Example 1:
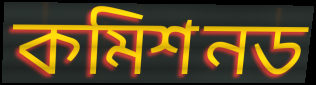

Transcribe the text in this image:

কমিশনড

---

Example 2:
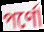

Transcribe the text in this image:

পর্ণো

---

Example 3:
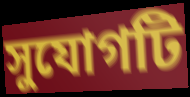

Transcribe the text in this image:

সুযোগটি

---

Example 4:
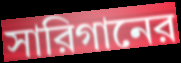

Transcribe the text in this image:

সারিগানের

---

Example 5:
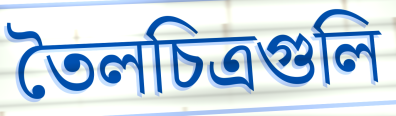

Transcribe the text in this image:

তৈলচিত্রগুলি